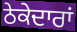
ਠੇਕੇਦਾਰਾਂ